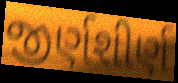
જીર્ણશીર્ણ